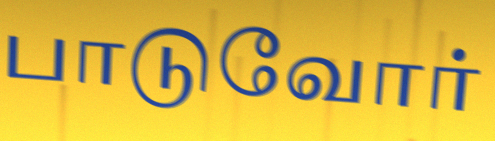
பாடுவோர்